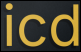
icd